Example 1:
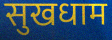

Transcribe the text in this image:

सुखधाम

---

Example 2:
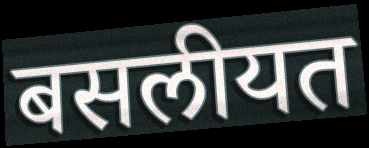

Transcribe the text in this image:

बसलीयत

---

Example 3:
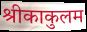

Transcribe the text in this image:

श्रीकाकुलम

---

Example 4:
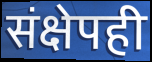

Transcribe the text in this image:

संक्षेपही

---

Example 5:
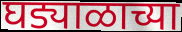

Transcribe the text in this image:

घड्याळाच्या